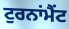
ਟੁਰਨਾਂਮੈਂਟ